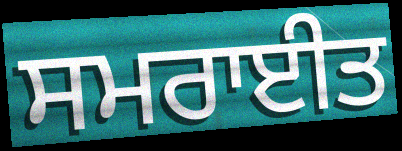
ਸਮਰਾਈਤ